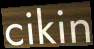
cikin